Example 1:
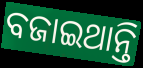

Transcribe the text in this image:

ବଜାଇଥାନ୍ତି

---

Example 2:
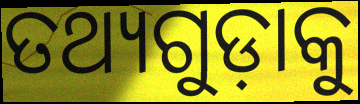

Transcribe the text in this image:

ତଥ୍ୟଗୁଡ଼ାକୁ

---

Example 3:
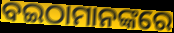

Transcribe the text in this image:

ବଇଠାମାନଙ୍କରେ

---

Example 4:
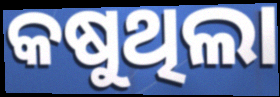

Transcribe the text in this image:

କଷୁଥିଲା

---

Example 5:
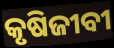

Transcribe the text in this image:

କୃଷିଜୀବୀ